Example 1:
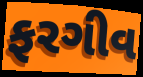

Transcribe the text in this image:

ફરગીવ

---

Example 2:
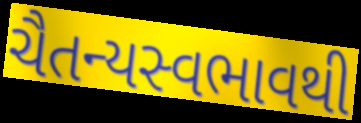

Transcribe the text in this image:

ચૈતન્યસ્વભાવથી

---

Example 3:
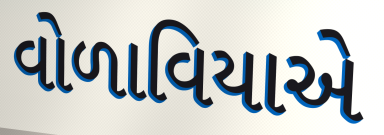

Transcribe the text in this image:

વોળાવિયાએ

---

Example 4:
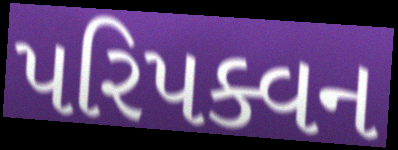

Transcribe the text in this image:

પરિપક્વન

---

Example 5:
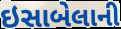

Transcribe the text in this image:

ઇસાબેલાની